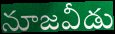
నూజవీడు